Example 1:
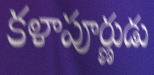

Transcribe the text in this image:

కళాపూర్ణుడు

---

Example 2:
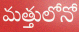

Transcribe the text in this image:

మత్తులోనో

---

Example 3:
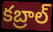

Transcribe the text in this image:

కబ్రాల్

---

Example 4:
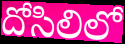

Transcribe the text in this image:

దోసిలిలో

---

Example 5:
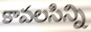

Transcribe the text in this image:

కావలసిన్ని